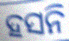
ହସନି